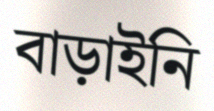
বাড়াইনি